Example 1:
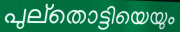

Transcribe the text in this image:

പുല്തൊട്ടിയെയും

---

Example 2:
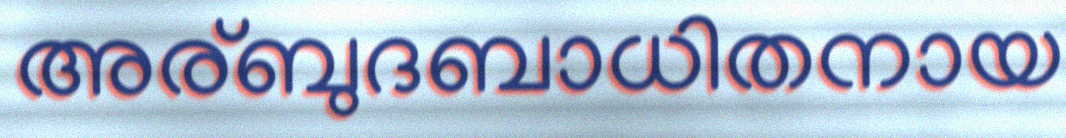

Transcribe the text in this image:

അര്ബുദബാധിതനായ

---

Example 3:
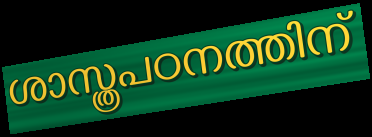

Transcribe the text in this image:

ശാസ്ത്രപഠനത്തിന്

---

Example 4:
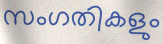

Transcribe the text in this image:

സംഗതികളും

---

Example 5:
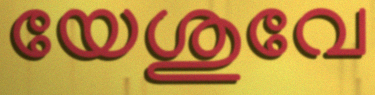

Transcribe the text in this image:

യേശുവേ